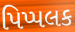
પિપ્પલક